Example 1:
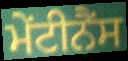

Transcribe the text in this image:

ਮੇਂਟੀਨੈਂਸ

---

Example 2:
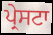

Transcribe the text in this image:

ਪ੍ਰੇਸਟਾ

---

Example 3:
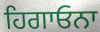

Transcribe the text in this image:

ਹਿਗਾਓਨਾ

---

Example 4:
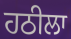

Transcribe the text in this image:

ਹਠੀਲਾ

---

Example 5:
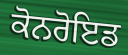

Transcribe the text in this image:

ਕੋਨਰੋਇਡ